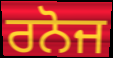
ਰਨੋਜ